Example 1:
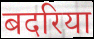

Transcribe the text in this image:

बदरिया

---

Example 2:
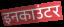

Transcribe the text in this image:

इनकाउंटर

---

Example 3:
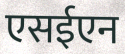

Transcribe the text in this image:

एसईएन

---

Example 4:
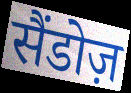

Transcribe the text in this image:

सैंडोज़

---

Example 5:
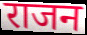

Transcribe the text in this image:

राजन